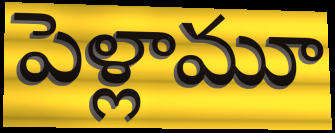
పెళ్లామూ